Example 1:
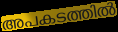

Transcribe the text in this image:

അപകടത്തിൽ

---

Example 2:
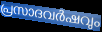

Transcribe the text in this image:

പ്രസാദവർഷവും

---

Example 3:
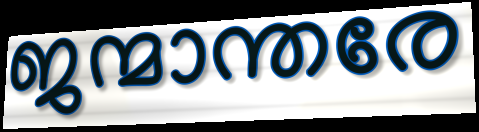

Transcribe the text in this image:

ജന്മാന്തരേ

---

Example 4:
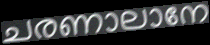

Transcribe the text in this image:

ചരണാലാനേ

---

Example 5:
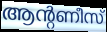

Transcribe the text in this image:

ആന്റണീസ്